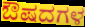
ಔಷದಗಳ